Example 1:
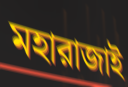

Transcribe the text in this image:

মহারাজাই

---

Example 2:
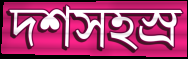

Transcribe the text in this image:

দশসহস্র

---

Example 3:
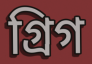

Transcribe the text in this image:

গ্রিগ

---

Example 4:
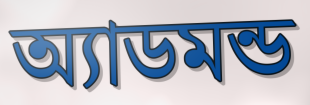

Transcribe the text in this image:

অ্যাডমন্ড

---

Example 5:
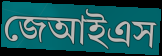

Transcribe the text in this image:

জেআইএস